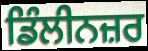
ਡਿੰਲੀਨਜ਼ਰ